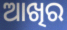
ଆଖିର